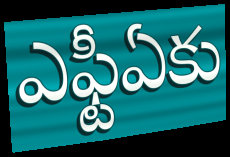
ఎఫ్టీఏకు